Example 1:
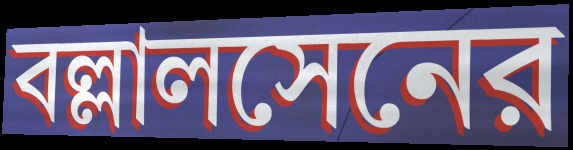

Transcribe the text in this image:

বল্লালসেনের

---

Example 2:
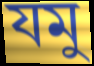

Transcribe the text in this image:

যমু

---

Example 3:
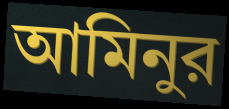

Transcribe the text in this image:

আমিনুর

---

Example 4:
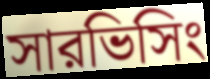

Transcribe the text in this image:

সারভিসিং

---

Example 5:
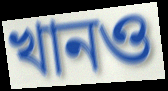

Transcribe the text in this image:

খানও